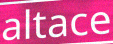
altace